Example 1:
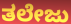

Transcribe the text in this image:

ತಲೇಜು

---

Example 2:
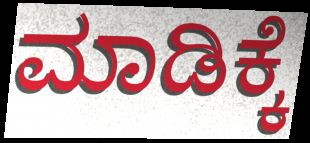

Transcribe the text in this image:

ಮಾಡಿಕ್ಕೆ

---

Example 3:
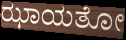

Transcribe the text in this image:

ಝಾಯತೋ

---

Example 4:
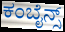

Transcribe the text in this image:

ಕಂಬೈನ್ಸ್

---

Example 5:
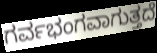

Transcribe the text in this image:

ಗರ್ವಭಂಗವಾಗುತ್ತದೆ